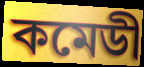
কমেডী